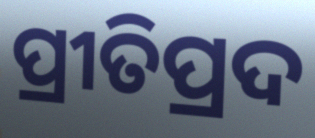
ପ୍ରୀତିପ୍ରଦ